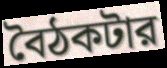
বৈঠকটার